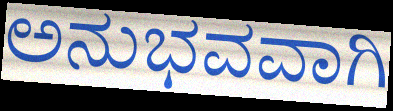
ಅನುಭವವಾಗಿ